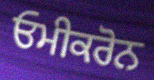
ਓਮੀਕਰੋਨ